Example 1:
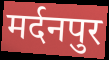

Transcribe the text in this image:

मर्दनपुर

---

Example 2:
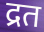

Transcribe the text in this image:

द्रत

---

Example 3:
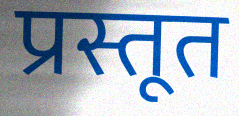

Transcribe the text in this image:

प्रस्तूत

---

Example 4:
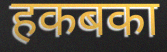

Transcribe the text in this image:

हकबका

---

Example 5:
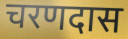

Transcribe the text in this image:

चरणदास